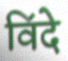
विंदे